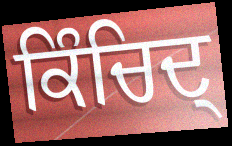
ਕਿੰਚਿਦ੍